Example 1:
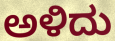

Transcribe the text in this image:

ಅಳಿದು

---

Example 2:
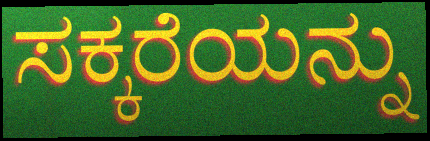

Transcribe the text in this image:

ಸಕ್ಕರೆಯನ್ನು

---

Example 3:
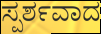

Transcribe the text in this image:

ಸ್ಪರ್ಶವಾದ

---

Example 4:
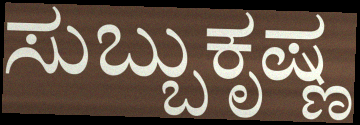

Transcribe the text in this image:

ಸುಬ್ಬುಕೃಷ್ಣ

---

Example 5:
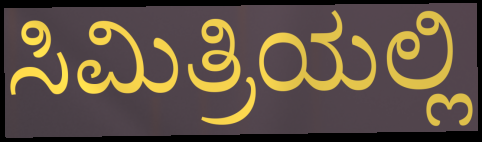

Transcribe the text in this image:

ಸಿಮಿತ್ರಿಯಲ್ಲಿ